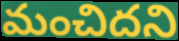
మంచిదని